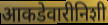
आकडेवारीनिशी